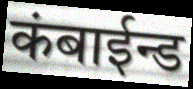
कंबाईन्ड